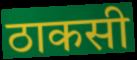
ठाकसी